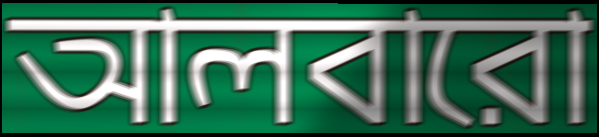
আলবারো